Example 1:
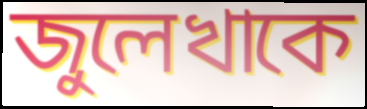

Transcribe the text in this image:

জুলেখাকে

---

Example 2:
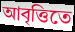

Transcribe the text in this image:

আবৃত্তিতে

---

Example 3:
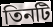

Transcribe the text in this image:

তিনটি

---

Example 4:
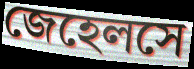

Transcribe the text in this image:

জেহেলসে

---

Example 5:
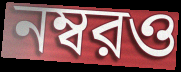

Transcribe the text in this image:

নম্বরও